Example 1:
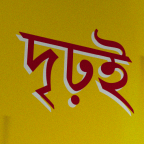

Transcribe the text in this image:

দৃঢ়ই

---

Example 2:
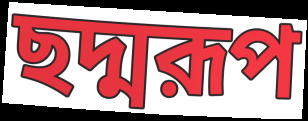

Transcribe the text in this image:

ছদ্মরূপ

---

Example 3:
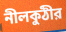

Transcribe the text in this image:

নীলকুঠীর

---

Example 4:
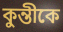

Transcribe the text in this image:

কুন্তীকে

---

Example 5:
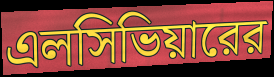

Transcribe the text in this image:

এলসিভিয়ারের